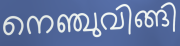
നെഞ്ചുവിങ്ങി